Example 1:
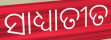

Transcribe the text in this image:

ସାଧ୍ୟାତୀତ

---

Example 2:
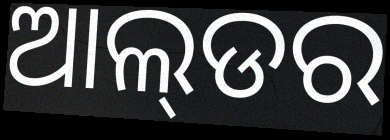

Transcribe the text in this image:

ଆଲ୍‌ଡର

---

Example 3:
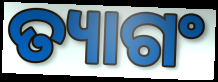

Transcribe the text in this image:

ତ୍ୟାଗଂ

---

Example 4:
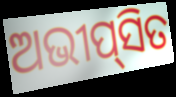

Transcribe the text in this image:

ଅଭୀପ୍‌ସିତ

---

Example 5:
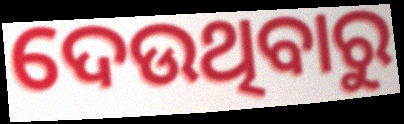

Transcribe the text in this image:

ଦେଉଥିବାରୁ